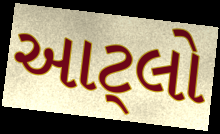
આટ્લો